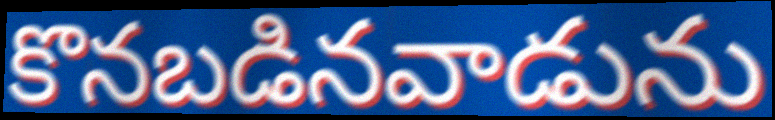
కొనబడినవాడును